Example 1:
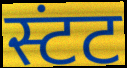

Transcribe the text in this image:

स्टंट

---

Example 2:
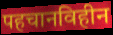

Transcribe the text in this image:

पहचानविहीन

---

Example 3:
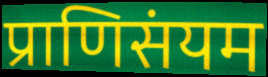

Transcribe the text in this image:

प्राणिसंयम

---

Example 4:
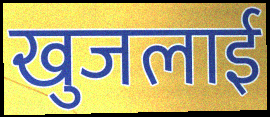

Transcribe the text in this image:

खुजलाई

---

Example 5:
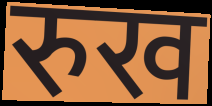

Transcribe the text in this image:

रुख